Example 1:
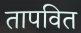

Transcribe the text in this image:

तापवित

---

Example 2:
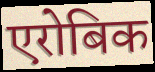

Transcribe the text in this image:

एरोबिक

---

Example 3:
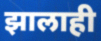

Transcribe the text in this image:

झालाही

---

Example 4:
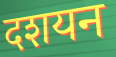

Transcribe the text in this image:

दशयन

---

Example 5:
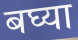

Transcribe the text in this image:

बघ्या